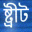
ষ্ট্ৰীট